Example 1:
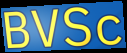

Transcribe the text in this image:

BVSc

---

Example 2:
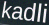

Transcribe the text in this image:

kadli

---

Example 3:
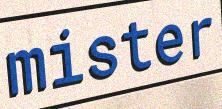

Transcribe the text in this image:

mister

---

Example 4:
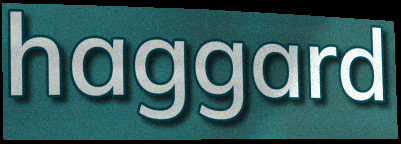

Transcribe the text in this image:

haggard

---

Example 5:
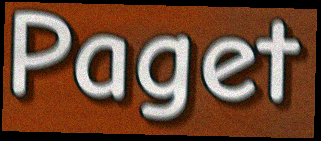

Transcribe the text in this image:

Paget